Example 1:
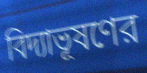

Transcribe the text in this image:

বিদ্যাভূষণের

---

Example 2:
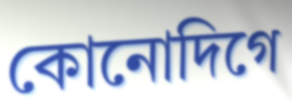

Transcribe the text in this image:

কোনোদিগে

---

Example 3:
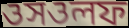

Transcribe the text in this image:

ওসওলফ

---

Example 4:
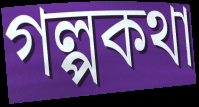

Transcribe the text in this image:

গল্পকথা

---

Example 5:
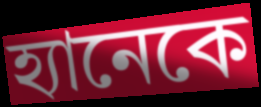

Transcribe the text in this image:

হ্যানেকে